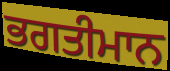
ਭਗਤੀਮਾਨ